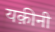
यक़ीनी